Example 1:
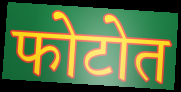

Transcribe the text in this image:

फोटोत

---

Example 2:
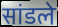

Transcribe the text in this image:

सांडले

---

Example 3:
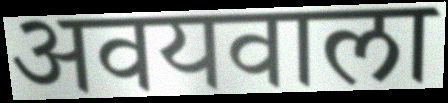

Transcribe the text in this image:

अवयवाला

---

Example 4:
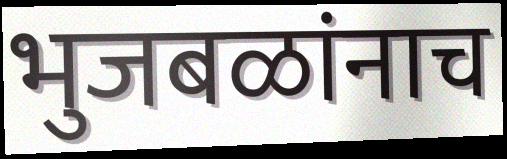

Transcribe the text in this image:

भुजबळांनाच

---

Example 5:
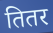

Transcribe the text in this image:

तितर